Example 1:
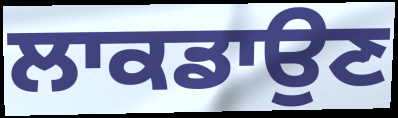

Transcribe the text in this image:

ਲਾਕਡਾਉਣ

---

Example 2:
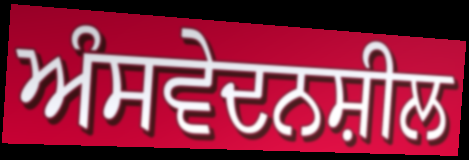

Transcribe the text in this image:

ਅੰਸਵੇਦਨਸ਼ੀਲ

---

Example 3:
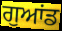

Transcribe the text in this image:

ਗੁਆਂਡ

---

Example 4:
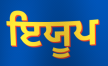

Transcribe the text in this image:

ਇਯੂਪ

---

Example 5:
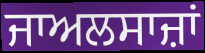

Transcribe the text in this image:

ਜਾਅਲਸਾਜ਼ਾਂ